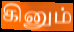
கினும்